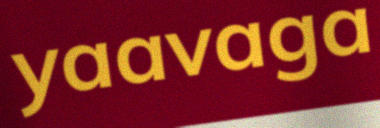
yaavaga